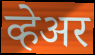
व्हेअर